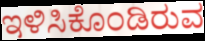
ಇಳಿಸಿಕೊಂಡಿರುವ